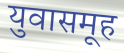
युवासमूह